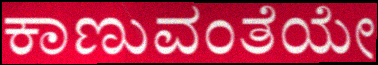
ಕಾಣುವಂತೆಯೇ